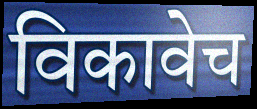
विकावेच